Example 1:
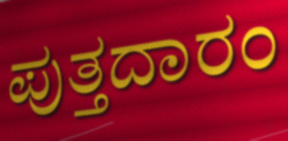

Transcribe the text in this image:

ಪುತ್ತದಾರಂ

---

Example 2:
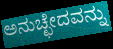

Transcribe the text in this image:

ಅನುಚ್ಛೇದವನ್ನು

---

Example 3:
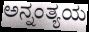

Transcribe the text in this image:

ಅನ್ನಂತ್ಯಯ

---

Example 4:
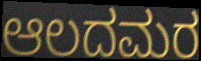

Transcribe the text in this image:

ಆಲದಮರ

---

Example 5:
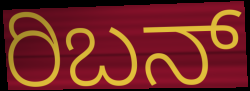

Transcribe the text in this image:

ರಿಬನ್